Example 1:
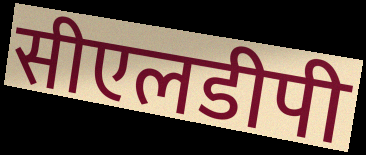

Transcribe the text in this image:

सीएलडीपी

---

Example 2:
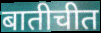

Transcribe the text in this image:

बातीचीत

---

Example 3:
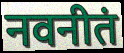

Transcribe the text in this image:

नवनीतं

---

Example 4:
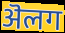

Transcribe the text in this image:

ऄलग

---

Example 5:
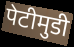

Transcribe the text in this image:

पेटीमुडी